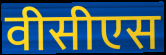
वीसीएस